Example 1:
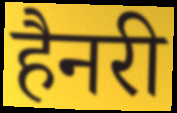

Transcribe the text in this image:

हैनरी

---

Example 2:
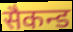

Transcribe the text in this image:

सैकन्ड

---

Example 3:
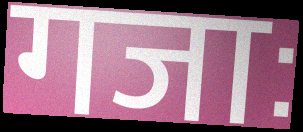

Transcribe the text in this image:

गजाः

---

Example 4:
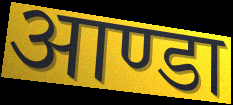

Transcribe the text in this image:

आण्डा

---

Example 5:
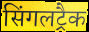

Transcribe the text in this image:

सिंगलट्रैक